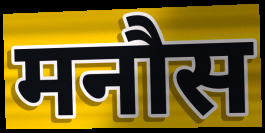
मनौस